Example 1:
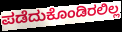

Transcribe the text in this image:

ಪಡೆದುಕೊಂಡಿರಲಿಲ್ಲ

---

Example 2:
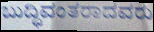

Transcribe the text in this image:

ಬುದ್ಧಿವಂತರಾದವರು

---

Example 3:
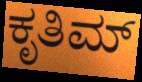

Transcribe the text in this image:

ಕೃತಿಮ್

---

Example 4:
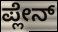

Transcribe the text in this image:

ಪ್ಲೇನ್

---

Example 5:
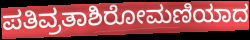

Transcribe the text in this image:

ಪತಿವ್ರತಾಶಿರೋಮಣಿಯಾದ